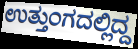
ಉತ್ತುಂಗದಲ್ಲಿದ್ದ